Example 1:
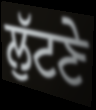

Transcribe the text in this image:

ਲੁੱਟਣੇ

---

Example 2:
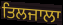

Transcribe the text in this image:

ਤਿਲਜਾਲਾ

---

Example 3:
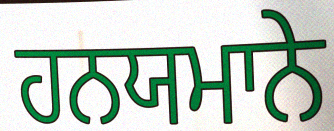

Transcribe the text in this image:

ਹਨਯਮਾਨੇ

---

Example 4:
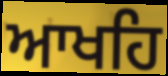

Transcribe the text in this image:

ਆਖਹਿ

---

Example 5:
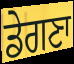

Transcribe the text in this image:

ਡੇਗਣਾ